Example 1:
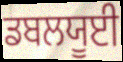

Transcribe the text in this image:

ਡਬਲਯੂਈ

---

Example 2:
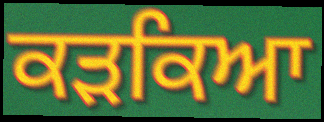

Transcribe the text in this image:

ਕੜਕਿਆ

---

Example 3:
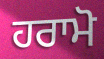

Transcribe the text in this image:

ਹਰਾਮੋ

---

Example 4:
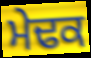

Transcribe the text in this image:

ਮੇਢਕ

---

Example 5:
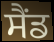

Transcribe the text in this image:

ਸੈਂਡ